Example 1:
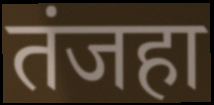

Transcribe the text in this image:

तंजहा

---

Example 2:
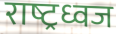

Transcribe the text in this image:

राष्ट्रध्वज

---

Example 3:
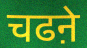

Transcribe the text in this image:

चढऩे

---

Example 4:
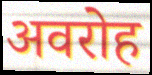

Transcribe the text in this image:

अवरोह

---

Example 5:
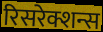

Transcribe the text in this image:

रिसरेक्शन्स